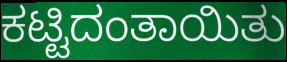
ಕಟ್ಟಿದಂತಾಯಿತು